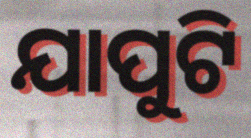
ଯାପୁଟି